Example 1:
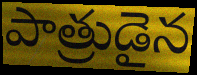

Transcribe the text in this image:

పాత్రుడైన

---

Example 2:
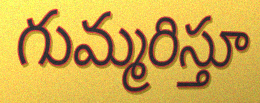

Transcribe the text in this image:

గుమ్మరిస్తూ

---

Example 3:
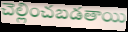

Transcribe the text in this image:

చెల్లించబడతాయి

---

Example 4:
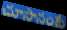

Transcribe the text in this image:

చూసానంటే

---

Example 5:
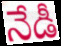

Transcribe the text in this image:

నేడీ